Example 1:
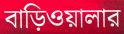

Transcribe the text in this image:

বাড়িওয়ালার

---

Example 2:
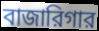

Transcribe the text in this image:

বাজারিগার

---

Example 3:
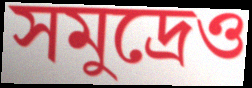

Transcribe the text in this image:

সমুদ্রেও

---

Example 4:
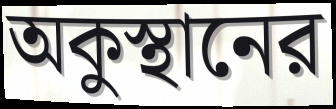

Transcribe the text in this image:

অকুস্থানের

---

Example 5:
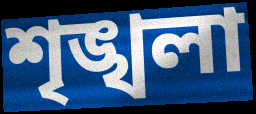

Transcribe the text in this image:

শৃঙ্খলা